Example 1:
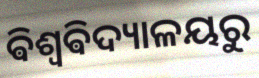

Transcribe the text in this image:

ଵିଶ୍ୱଵିଦ୍ୟାଳୟରୁ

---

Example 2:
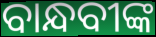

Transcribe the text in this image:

ବାନ୍ଧବୀଙ୍କ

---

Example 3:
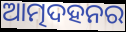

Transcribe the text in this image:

ଆତ୍ମଦହନର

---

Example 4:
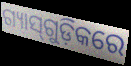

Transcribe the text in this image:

ଗ୍ୟାସ୍‌ଗୁଡ଼ିକରେ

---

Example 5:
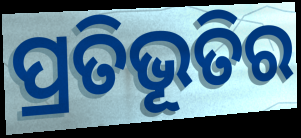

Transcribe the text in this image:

ପ୍ରତିଭୂତିର